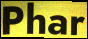
Phar